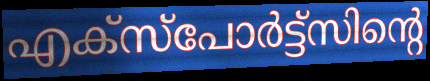
എക്സ്പോർട്ട്സിന്റെ